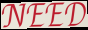
NEED